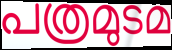
പത്രമുടമ